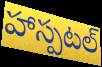
హాస్పటల్